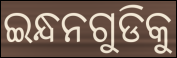
ଇନ୍ଧନଗୁଡିକୁ